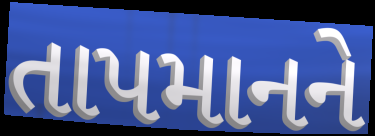
તાપમાનને